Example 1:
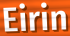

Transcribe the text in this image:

Eirin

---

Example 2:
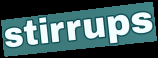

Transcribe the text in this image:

stirrups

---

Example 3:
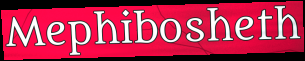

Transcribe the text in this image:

Mephibosheth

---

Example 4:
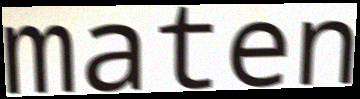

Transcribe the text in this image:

maten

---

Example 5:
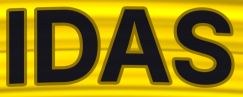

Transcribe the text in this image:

IDAS